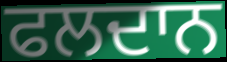
ਫਲਦਾਨ